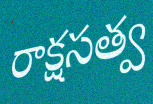
రాక్షసత్వ